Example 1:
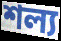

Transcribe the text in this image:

শল্য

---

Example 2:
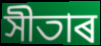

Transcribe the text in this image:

সীতাৰ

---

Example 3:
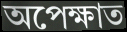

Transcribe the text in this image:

অপেক্ষাত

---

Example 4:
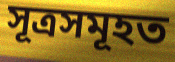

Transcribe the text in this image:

সূত্ৰসমূহত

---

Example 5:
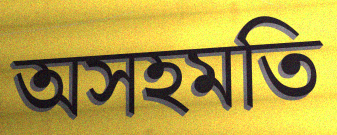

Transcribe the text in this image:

অসহমতি